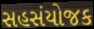
સહસંયોજક